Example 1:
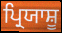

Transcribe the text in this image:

ਪ੍ਰਿਯਾਸ਼ੂ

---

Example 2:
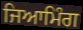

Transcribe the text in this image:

ਜਿਆਮਿੰਗ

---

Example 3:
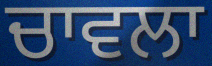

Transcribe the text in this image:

ਚਾਵਲਾ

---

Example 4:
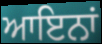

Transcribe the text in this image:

ਆਇਨਾਂ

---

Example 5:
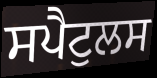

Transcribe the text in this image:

ਸਪੈਟੁਲਸ